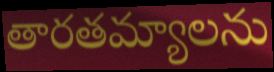
తారతమ్యాలను